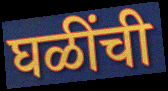
घळींची